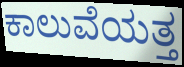
ಕಾಲುವೆಯತ್ತ